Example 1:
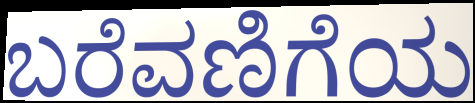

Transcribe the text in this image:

ಬರೆವಣಿಗೆಯ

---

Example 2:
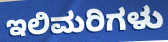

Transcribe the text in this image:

ಇಲಿಮರಿಗಳು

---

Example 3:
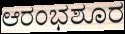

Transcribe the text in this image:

ಆರಂಭಶೂರ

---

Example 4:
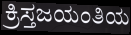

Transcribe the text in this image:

ಕ್ರಿಸ್ತಜಯಂತಿಯ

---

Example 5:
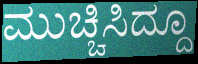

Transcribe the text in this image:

ಮುಚ್ಚಿಸಿದ್ದೂ